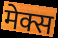
मेक्स